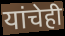
यांचेही